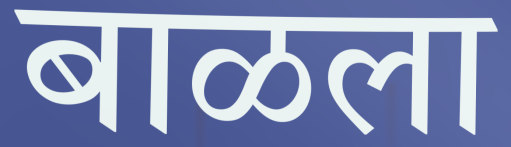
बाळला